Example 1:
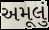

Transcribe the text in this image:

અમૂલું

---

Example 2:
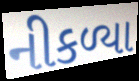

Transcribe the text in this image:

નીકળ્યા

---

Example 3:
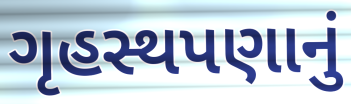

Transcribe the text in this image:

ગૃહસ્થપણાનું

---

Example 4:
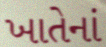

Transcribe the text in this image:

ખાતેનાં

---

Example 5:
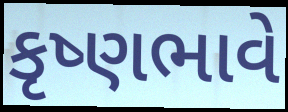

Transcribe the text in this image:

કૃષ્ણભાવે